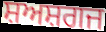
ਸ਼ਅਸ਼ਗਜ